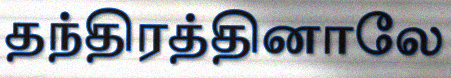
தந்திரத்தினாலே